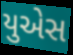
યુએસ